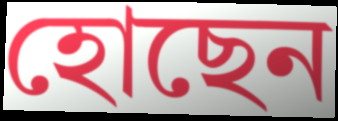
হোছেন